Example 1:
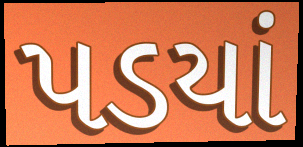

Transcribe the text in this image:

પડયાં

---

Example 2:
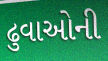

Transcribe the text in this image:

ઢુવાઓની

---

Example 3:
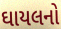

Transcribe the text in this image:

ઘાયલનો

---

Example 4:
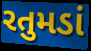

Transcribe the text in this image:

રતુમડાં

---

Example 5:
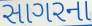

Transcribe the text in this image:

સાગરના